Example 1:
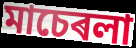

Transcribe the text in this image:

মাচেৰলা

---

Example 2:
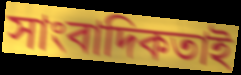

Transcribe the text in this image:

সাংবাদিকতাই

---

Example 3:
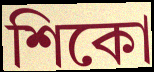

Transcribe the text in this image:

শিকো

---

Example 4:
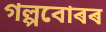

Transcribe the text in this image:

গল্পবোৰৰ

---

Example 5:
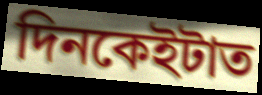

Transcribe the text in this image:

দিনকেইটাত